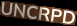
UNCRPD